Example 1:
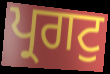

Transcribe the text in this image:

ਪ੍ਰਗਟੁ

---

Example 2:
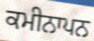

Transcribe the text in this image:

ਕਮੀਨਾਪਨ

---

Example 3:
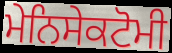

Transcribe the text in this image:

ਮੇਨਿਸੇਕਟੋਮੀ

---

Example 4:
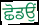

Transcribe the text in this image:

ਛੋਡਉਂ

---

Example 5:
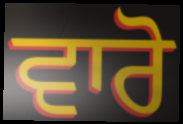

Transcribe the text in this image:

ਵਾਰੋ